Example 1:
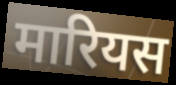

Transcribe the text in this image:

मारियस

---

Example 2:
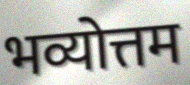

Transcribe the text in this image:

भव्योत्तम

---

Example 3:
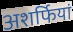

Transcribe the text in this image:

अशर्फियां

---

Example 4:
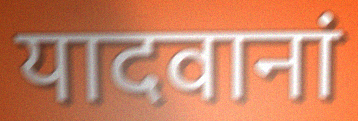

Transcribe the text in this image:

यादवानां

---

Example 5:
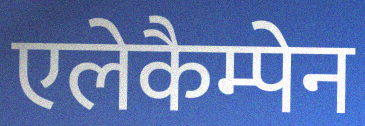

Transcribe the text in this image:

एलेकैम्पेन